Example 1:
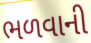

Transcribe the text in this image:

ભળવાની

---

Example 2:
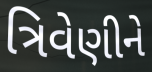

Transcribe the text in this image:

ત્રિવેણીને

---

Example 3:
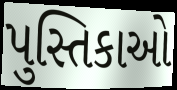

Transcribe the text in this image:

પુસ્તિકાઓ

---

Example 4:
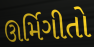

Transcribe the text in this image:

ઊર્મિગીતો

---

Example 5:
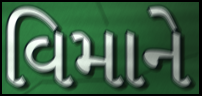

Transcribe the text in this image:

વિમાને